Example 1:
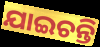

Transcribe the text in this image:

ଯାଇଚନ୍ତି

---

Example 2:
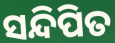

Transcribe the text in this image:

ସନ୍ଦିପିତ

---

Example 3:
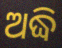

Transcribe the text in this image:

ଅଦ୍ଧି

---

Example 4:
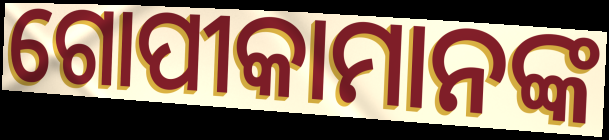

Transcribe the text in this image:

ଗୋପୀକାମାନଙ୍କ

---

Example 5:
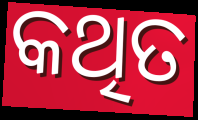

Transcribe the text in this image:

କଥିତ